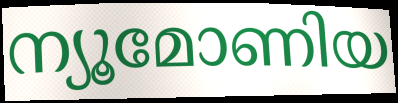
ന്യൂമോണിയ